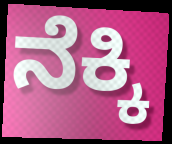
ನೆಕ್ಕಿ